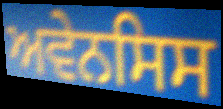
ਅਵੇਨਸਿਸ